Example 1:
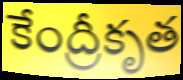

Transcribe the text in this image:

కేంద్రీకృత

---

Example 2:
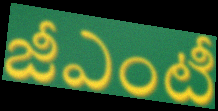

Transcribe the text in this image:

జీఎంటీ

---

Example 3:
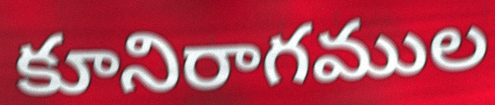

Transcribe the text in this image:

కూనిరాగముల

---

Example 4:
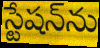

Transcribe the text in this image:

స్టేషన్‌ను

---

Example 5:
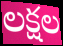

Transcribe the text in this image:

లక్షల